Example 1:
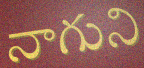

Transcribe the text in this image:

నాగుని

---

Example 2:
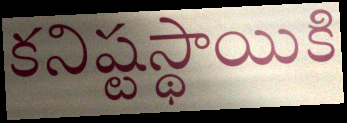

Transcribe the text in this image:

కనిష్టస్థాయికి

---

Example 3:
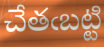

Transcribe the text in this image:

చేతఁబట్టి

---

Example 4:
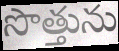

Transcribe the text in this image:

సొత్తును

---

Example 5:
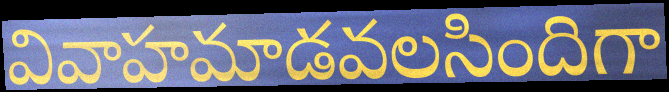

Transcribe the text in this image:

వివాహమాడవలసిందిగా